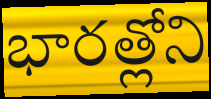
భారత్లోని